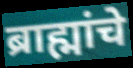
ब्राह्मांचे